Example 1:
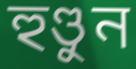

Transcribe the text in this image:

হুণ্ডুন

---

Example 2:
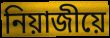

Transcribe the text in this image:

নিয়াজীয়ে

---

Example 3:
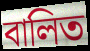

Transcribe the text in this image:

বালিত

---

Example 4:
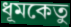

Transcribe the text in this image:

ধূমকেতু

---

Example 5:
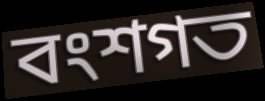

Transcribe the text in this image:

বংশগত